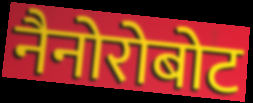
नैनोरोबोट